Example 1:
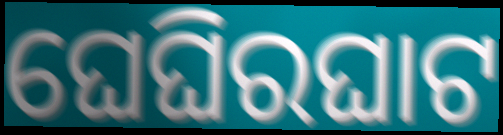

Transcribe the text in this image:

ଘେଘିରଘାଟ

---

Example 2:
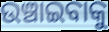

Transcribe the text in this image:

ଉଞ୍ଚାଇବାକୁ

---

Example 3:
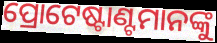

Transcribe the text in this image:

ପ୍ରୋଟେଷ୍ଟାଣ୍ଟମାନଙ୍କୁ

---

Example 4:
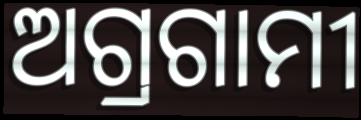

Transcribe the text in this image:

ଅଗ୍ରଗାମୀ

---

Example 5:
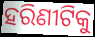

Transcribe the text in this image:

ହରିଣୀଟିକୁ